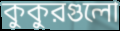
কুকুরগুলো